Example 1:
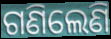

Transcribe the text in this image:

ଗଣିଲେଣି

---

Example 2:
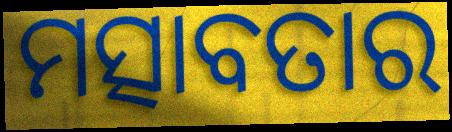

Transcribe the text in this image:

ମତ୍ସାବତାର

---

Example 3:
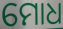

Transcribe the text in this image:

ମୋଧ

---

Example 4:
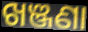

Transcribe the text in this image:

ଖଞ୍ଜଣା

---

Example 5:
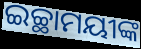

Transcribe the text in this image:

ଇଚ୍ଛାମୟୀଙ୍କ